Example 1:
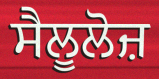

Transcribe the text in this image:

ਸੈਲੂਲੋਜ਼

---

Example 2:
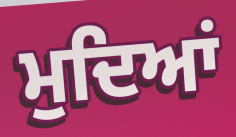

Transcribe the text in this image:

ਮੁਦਿਆਂ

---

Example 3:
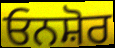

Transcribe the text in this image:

ਓਨਸ਼ੋਰ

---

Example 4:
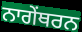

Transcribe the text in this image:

ਨਾਗੇਂਥਰਨ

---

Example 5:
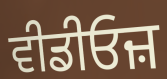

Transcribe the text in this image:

ਵੀਡੀਓਜ਼